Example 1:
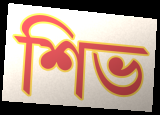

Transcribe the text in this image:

শিভ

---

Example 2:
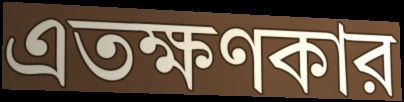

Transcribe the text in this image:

এতক্ষণকার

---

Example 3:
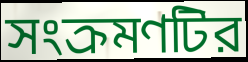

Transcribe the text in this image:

সংক্রমণটির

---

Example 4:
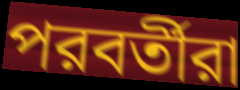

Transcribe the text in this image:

পরবর্তীরা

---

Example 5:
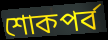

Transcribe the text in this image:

শোকপর্ব